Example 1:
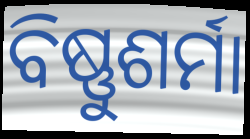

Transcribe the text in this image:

ବିଷ୍ଣୁଶର୍ମା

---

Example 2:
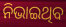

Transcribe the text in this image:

ନିଭାଇଥିବ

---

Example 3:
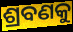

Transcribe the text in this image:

ଶ୍ରବଣକୁ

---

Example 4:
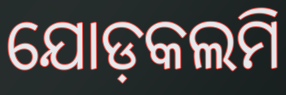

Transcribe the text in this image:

ଯୋଡ଼କଲମି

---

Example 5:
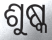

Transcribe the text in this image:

ଶୁଷ୍କ